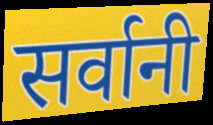
सर्वानी